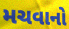
મચવાનો